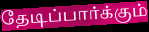
தேடிப்பார்க்கும்